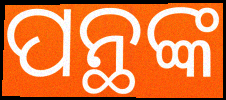
ପନ୍ଥଙ୍କ